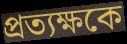
প্রত্যক্ষকে